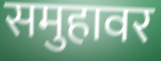
समुहावर